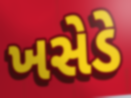
ખસેડે